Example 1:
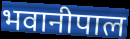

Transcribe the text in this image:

भवानीपाल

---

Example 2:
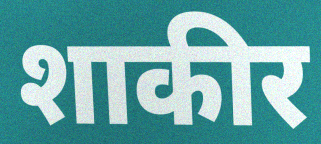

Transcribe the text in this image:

शाकीर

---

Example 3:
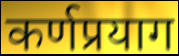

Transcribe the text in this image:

कर्णप्रयाग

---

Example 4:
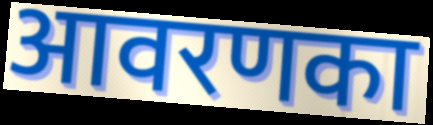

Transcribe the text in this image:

आवरणका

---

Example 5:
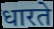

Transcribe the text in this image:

धारते